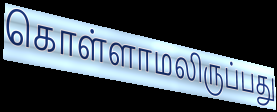
கொள்ளாமலிருப்பது